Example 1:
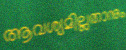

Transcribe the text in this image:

ആവശ്യമില്ലതാനും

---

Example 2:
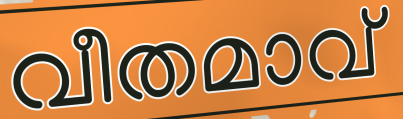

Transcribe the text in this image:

വീതമാവ്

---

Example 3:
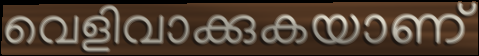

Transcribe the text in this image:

വെളിവാക്കുകയാണ്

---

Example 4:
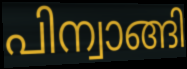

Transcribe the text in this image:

പിന്വാങ്ങി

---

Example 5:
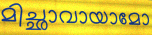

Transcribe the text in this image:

മിച്ഛാവായാമോ